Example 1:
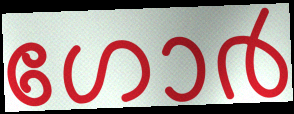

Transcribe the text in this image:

ഗോർ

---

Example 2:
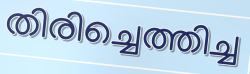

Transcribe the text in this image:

തിരിച്ചെത്തിച്ച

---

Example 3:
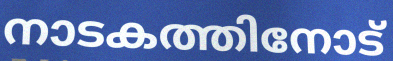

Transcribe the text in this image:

നാടകത്തിനോട്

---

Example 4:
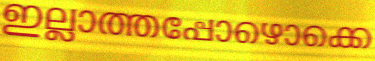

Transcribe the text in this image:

ഇല്ലാത്തപ്പോഴൊക്കെ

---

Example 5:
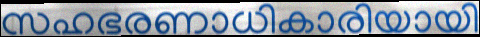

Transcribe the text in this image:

സഹഭരണാധികാരിയായി